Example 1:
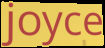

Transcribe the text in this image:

joyce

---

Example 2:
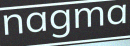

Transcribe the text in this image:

nagma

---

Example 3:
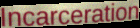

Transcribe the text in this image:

Incarceration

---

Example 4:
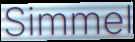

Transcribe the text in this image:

Simmel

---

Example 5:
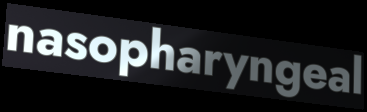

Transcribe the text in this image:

nasopharyngeal